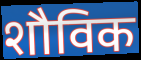
शौविक